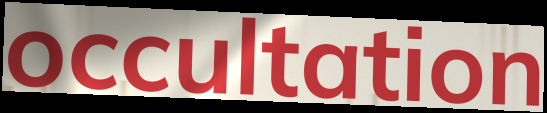
occultation